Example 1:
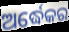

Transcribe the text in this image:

ଅର୍ଦ୍ଧେକର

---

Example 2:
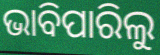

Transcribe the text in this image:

ଭାବିପାରିଲୁ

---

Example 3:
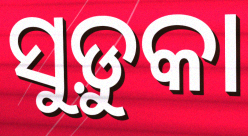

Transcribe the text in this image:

ସୁଡ଼ୁକା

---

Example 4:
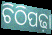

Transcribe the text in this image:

ଚିଠିପଢ଼ା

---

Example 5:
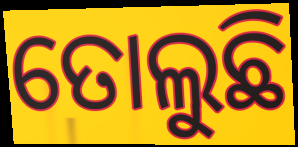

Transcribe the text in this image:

ତୋଲୁଛି